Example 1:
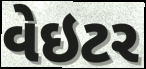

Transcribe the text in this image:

વેઇટર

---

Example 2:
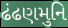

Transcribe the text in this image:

ઢંઢણમુનિ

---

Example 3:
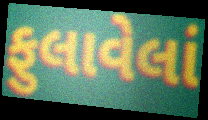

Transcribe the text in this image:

ફુલાવેલાં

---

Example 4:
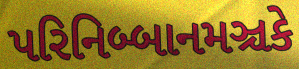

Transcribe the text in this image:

પરિનિબ્બાનમઞ્ચકે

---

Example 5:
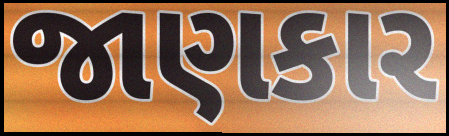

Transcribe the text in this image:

જાણકાર